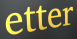
etter